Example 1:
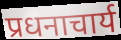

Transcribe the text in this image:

प्रधनाचार्य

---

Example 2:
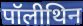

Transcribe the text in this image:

पॉलीथिन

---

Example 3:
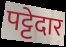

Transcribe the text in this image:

पट्टेदार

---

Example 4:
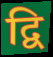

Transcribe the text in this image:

द्वि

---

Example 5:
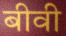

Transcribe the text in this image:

बीवी